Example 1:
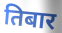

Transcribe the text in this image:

तिबार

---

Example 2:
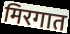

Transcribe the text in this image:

मिरगात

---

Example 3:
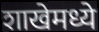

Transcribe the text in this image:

शाखेमध्ये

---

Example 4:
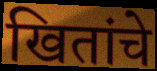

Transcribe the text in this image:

खितांचे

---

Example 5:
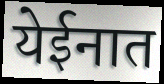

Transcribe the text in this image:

येईनात